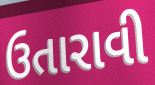
ઉતારાવી